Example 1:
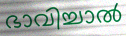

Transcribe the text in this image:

ഭാവിച്ചാൽ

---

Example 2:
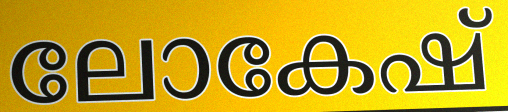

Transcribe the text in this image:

ലോകേഷ്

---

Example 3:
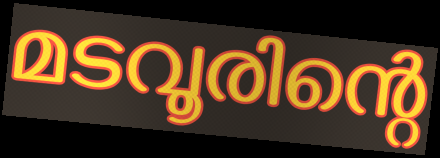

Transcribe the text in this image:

മടവൂരിന്റെ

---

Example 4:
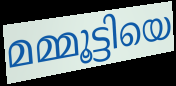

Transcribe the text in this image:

മമ്മൂട്ടിയെ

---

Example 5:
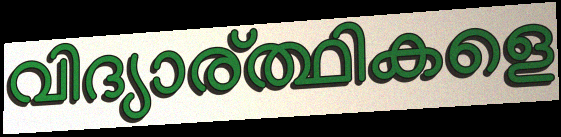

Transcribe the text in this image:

വിദ്യാര്ത്ഥികളെ